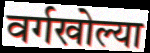
वर्गखोल्या